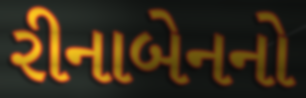
રીનાબેનનો